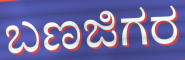
ಬಣಜಿಗರ